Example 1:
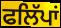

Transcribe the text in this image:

ਫਲਿੱਪਾਂ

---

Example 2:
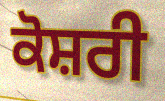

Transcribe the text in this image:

ਕੋਸ਼ਰੀ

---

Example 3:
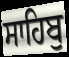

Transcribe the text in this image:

ਸਾਹਿਬੁ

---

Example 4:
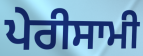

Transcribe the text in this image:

ਪੇਰੀਸਾਮੀ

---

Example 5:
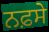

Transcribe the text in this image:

ਨਫ਼ਸੇ